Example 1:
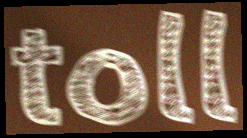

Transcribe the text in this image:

toll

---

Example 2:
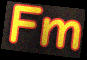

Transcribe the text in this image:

Fm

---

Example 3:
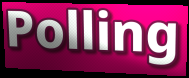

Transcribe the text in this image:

Polling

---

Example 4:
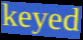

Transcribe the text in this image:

keyed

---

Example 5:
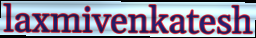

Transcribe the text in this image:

laxmivenkatesh